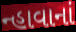
ન્હાવાનાં